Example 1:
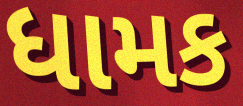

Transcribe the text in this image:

ધામક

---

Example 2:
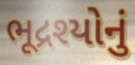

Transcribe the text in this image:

ભૂદ્રશ્યોનું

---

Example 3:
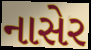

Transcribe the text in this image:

નાસેર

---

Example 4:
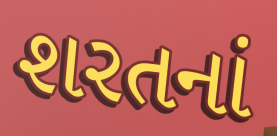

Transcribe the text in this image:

શરતનાં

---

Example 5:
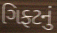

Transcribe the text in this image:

ગિફ્ટનું